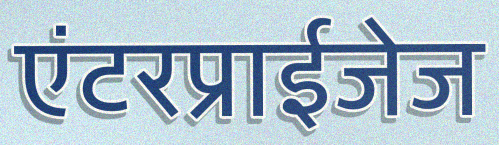
एंटरप्राईजेज